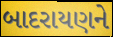
બાદરાયણને